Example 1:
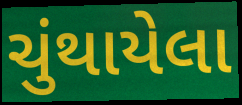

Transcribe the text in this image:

ચુંથાયેલા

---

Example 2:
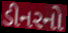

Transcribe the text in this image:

ડીનરનો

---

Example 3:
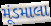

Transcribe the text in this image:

મૂંડમાલા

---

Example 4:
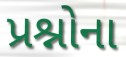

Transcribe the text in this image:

પ્રશ્નોના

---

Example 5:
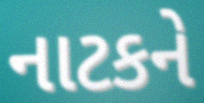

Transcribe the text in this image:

નાટકને